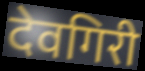
देवगिरी